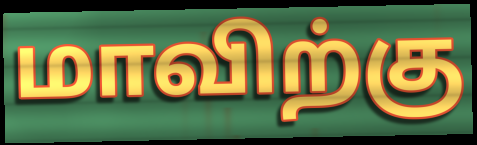
மாவிற்கு